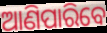
ଆଣିପାରିବେ